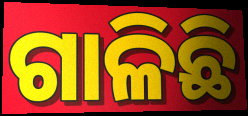
ଗାଳିଛି